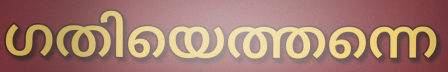
ഗതിയെത്തന്നെ